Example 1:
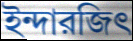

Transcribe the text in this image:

ইন্দারজিৎ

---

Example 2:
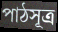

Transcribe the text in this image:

পাঠসূত্র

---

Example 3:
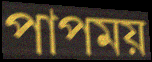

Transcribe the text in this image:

পাপময়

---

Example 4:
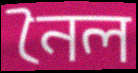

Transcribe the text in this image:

নৈল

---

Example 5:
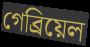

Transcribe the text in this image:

গেব্রিয়েল